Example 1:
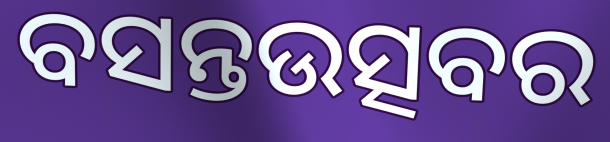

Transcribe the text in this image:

ବସନ୍ତଉତ୍ସବର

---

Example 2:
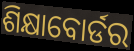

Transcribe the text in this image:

ଶିକ୍ଷାବୋର୍ଡର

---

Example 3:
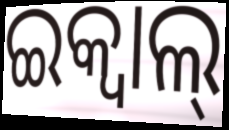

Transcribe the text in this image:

ଇକ୍ବାଲ୍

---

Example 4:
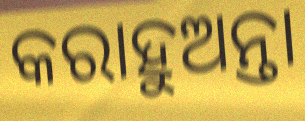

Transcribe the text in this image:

କରାହୁଅନ୍ତା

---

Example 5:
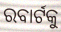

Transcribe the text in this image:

ରବାର୍ଟକୁ